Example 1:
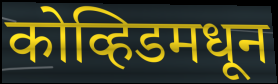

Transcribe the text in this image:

कोव्हिडमधून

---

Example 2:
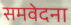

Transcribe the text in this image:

समवेदना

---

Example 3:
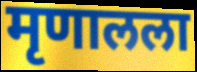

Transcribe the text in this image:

मृणालला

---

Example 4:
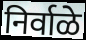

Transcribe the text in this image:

निर्वाळे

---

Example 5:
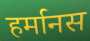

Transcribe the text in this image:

हर्मानस